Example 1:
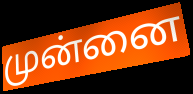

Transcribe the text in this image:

முன்னை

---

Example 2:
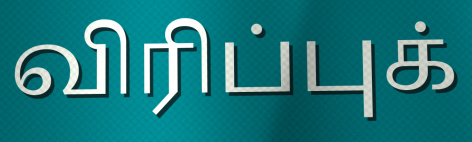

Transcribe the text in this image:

விரிப்புக்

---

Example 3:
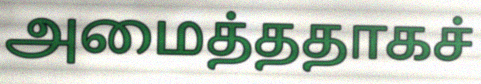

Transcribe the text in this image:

அமைத்ததாகச்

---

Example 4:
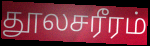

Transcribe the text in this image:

தூலசரீரம்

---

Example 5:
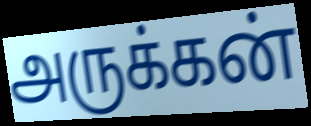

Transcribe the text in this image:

அருக்கன்